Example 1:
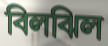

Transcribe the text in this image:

বিলঝিল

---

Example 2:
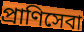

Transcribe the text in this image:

প্রাণিসেবা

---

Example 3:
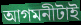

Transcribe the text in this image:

আগমনীটাই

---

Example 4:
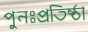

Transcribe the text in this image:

পুনঃপ্রতিষ্ঠা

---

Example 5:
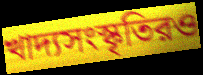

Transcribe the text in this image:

খাদ্যসংস্কৃতিরও